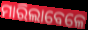
ମାରିଲାବେଳେ